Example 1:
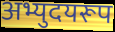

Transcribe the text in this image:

अभ्युदयरूप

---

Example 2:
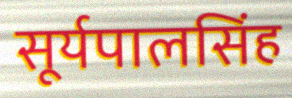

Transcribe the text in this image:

सूर्यपालसिंह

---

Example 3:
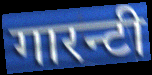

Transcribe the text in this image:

गारन्टी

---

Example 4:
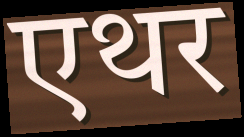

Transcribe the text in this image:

एथर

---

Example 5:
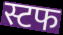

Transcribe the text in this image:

स्टफ